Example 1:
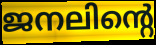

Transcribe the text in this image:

ജനലിന്റെ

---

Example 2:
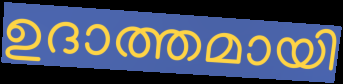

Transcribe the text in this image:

ഉദാത്തമായി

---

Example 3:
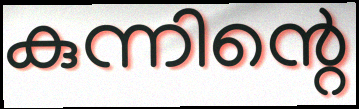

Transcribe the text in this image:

കുന്നിന്റെ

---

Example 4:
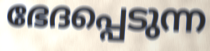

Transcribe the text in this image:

ഭേദപ്പെടുന്ന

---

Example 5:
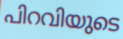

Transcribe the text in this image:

പിറവിയുടെ